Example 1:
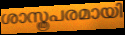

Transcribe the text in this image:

ശാസ്ത്രപരമായി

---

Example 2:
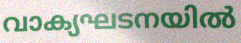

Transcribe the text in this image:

വാക്യഘടനയിൽ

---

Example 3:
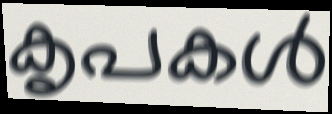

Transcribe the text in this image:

കൃപകൾ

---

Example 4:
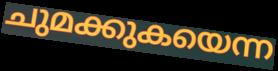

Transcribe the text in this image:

ചുമക്കുകയെന്ന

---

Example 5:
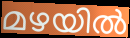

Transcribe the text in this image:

മഴയിൽ